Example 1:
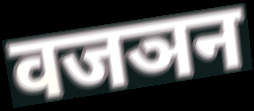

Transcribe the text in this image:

वजञन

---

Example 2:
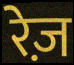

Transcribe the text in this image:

रेज़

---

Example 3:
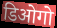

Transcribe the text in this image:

डिओगो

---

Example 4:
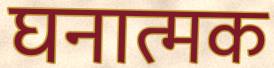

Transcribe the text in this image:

घनात्मक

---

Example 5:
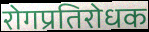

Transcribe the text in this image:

रोगप्रतिरोधक